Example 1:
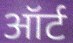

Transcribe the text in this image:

ऑर्ट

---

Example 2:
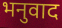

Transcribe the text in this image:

भनुवाद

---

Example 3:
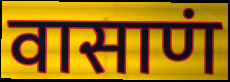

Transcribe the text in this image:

वासाणं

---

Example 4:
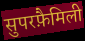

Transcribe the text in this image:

सुपरफ़ैमिली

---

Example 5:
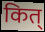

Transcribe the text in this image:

कित्